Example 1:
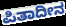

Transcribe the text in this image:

ಪಿತಾದೀನ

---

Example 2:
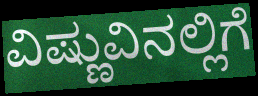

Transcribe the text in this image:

ವಿಷ್ಣುವಿನಲ್ಲಿಗೆ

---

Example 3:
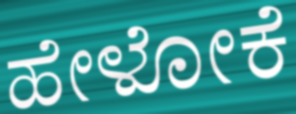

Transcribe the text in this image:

ಹೇಳೋಕೆ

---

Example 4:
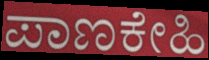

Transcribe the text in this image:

ಪಾಣಕೇಹಿ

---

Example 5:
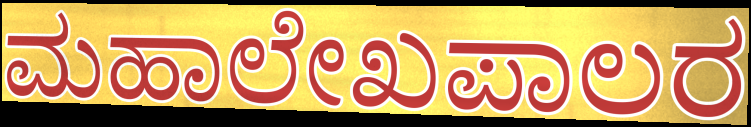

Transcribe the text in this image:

ಮಹಾಲೇಖಪಾಲರ